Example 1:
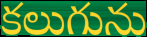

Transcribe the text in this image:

కలుగును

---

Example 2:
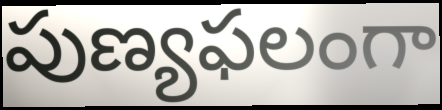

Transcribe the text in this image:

పుణ్యఫలంగా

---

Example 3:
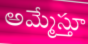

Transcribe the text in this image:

అమ్మేస్తూ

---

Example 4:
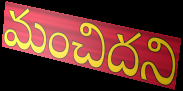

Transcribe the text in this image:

మంచిదని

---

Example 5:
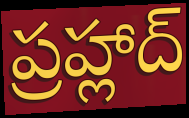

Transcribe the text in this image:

ప్రహ్లాద్